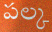
పల్క